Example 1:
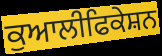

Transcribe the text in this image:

ਕੁਆਲੀਫਿਕੇਸ਼ਨ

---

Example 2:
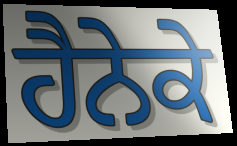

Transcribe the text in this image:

ਹੈਨੇਕੇ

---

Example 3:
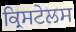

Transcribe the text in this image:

ਕ੍ਰਿਸਟੇਲਸ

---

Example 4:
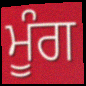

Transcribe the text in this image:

ਮੂੰਗ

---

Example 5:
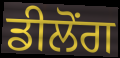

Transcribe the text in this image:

ਡੀਲੋਂਗ